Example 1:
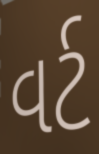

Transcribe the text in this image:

વર્ટ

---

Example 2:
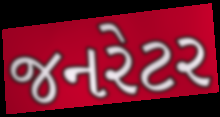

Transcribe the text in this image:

જનરેટર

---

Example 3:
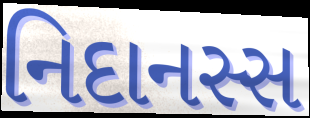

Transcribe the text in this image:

નિદાનસ્સ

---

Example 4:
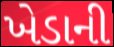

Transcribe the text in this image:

ખેડાની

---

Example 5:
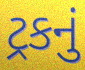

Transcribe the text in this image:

ટ્રકનું